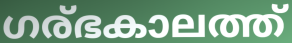
ഗര്ഭകാലത്ത്